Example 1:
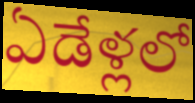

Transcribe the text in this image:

ఏడేళ్లలో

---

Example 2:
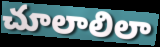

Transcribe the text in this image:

చూలాలిలా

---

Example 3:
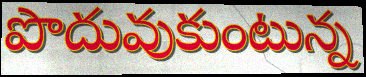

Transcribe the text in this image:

పొదువుకుంటున్న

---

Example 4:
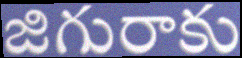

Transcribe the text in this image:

జిగురాకు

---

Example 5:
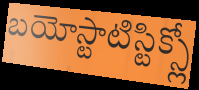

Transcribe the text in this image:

బయోస్టాటిస్టిక్స్లో